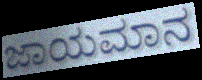
ಜಾಯಮಾನ